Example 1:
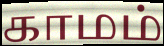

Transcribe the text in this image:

காமம்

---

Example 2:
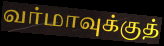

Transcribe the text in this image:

வர்மாவுக்குத்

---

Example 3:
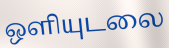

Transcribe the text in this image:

ஒளியுடலை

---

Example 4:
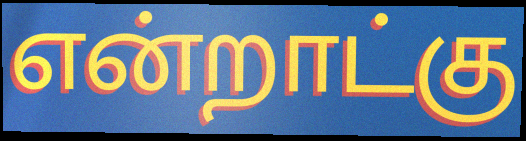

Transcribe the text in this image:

என்றாட்கு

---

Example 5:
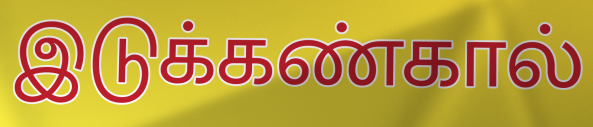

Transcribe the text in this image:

இடுக்கண்கால்